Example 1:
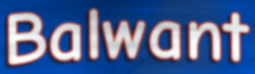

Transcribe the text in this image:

Balwant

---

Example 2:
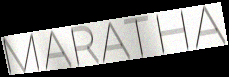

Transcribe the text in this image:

MARATHA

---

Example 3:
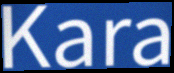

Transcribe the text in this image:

Kara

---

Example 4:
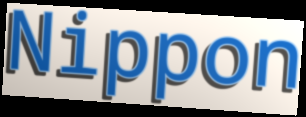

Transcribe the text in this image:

Nippon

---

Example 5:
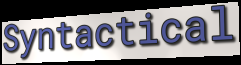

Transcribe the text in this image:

Syntactical